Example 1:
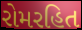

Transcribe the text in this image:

રોમરહિત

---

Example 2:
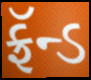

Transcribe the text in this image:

ફ્રૅન્ડ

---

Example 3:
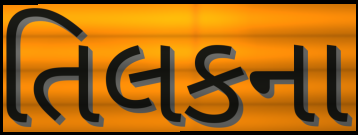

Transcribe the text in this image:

તિલકના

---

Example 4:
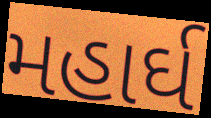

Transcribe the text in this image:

મહાર્ઘ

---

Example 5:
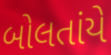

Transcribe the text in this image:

બોલતાંયે